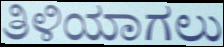
ತಿಳಿಯಾಗಲು